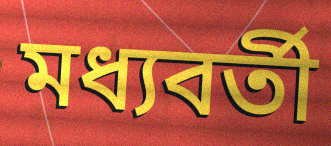
মধ্যবৰ্তী